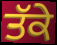
ਤੱਕੇ